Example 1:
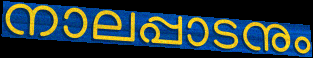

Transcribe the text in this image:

നാലപ്പാടനും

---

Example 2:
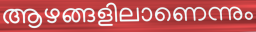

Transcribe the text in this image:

ആഴങ്ങളിലാണെന്നും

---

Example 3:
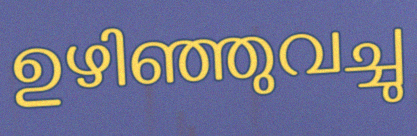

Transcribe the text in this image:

ഉഴിഞ്ഞുവച്ചു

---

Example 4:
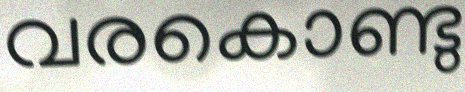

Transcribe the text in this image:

വരകൊണ്ടു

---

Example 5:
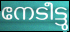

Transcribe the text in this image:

നേടീട്ടു